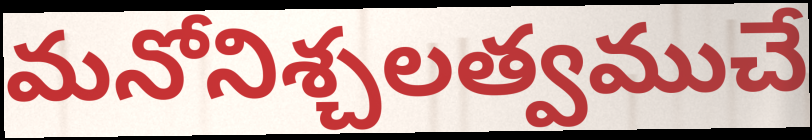
మనోనిశ్చలత్వముచే